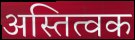
अस्तित्वक